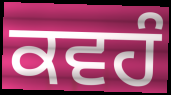
ਕਵਹੰ